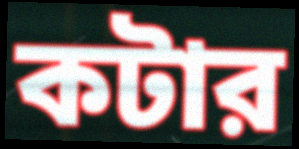
কটার